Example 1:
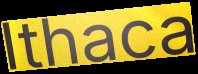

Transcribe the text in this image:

Ithaca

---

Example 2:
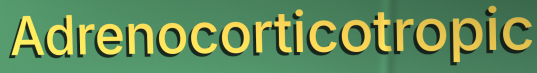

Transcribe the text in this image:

Adrenocorticotropic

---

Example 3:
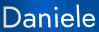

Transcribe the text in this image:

Daniele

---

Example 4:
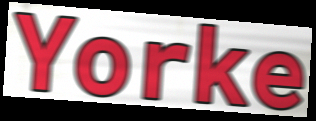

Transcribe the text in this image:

Yorke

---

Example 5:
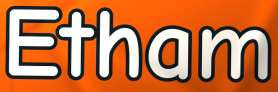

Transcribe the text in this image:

Etham